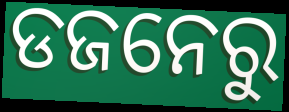
ଡଜନେରୁ